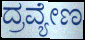
ದ್ರವ್ಯೇಣ